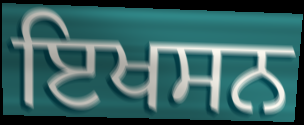
ਇਖਸਨ